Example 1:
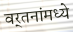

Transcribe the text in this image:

वर्तनांमध्ये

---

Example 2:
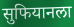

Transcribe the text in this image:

सुफियानला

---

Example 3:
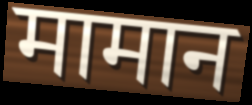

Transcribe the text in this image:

मामान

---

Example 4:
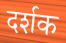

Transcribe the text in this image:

दर्शक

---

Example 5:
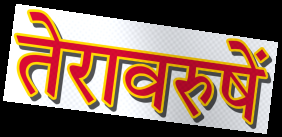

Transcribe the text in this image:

तेरावरुषें